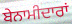
ਬੇਨਾਮੀਦਾਰਾਂ